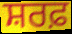
ਸ਼ਰਫ਼